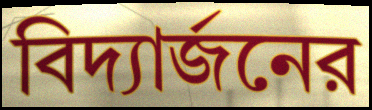
বিদ্যার্জনের